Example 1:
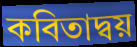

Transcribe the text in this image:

কবিতাদ্বয়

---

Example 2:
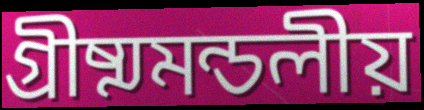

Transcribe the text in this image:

গ্রীষ্মমন্ডলীয়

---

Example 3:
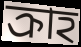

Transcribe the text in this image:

ক্রাহ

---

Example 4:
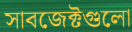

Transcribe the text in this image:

সাবজেক্টগুলো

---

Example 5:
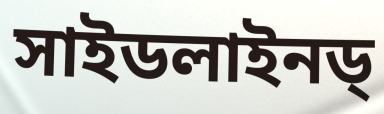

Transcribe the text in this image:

সাইডলাইনড্